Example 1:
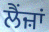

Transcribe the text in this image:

ਲੈਂਜ਼ਾਂ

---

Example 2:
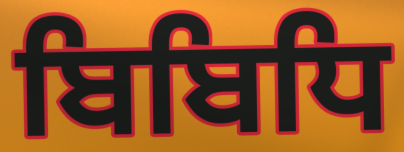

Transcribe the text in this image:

ਬਿਬਿਧਿ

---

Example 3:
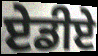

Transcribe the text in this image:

ਏਡੀਏ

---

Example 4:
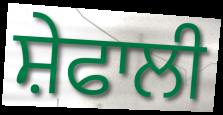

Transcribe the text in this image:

ਸ਼ੇਫਾਲੀ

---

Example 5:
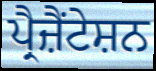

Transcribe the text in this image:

ਪ੍ਰੈਜ਼ੈਂਟੇਸ਼ਨ